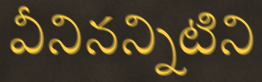
వీనినన్నిటిని